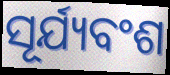
ସୂର୍ଯ୍ୟବଂଶ